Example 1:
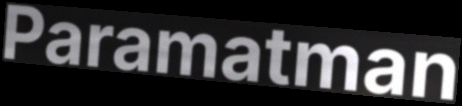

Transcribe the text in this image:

Paramatman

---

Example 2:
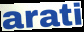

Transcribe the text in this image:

arati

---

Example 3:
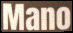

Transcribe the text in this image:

Mano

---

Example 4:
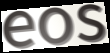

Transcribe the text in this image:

eos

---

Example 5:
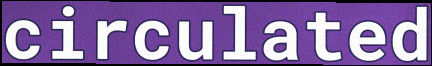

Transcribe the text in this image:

circulated